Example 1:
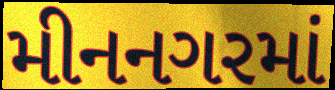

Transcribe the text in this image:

મીનનગરમાં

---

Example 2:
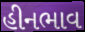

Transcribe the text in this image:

હીનભાવ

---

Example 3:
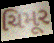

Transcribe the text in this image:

ચિમૂર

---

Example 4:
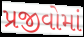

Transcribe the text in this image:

પ્રજીવોમાં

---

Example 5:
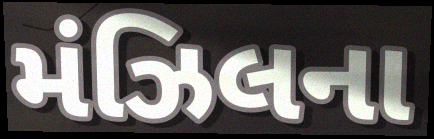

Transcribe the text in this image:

મંઝિલના